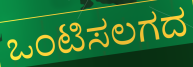
ಒಂಟಿಸಲಗದ